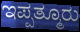
ಇಪ್ಪತ್ಮೂರು